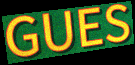
GUES